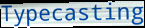
Typecasting